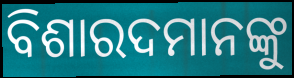
ବିଶାରଦମାନଙ୍କୁ